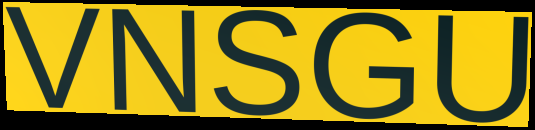
VNSGU